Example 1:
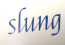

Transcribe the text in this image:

slung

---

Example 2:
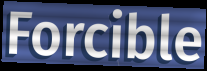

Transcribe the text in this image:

Forcible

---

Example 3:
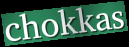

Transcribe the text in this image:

chokkas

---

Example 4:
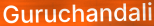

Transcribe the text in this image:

Guruchandali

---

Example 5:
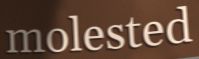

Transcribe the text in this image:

molested